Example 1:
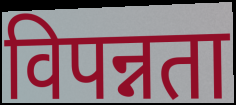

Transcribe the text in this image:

विपन्नता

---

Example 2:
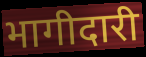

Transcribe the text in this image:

भागीदारी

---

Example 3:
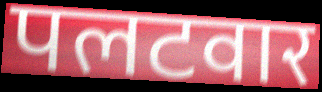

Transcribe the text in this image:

पलटवार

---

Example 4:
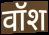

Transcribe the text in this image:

वॉश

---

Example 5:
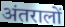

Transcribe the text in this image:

अंतरालों